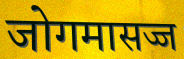
जोगमासज्ज